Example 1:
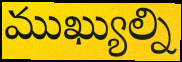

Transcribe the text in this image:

ముఖ్యుల్ని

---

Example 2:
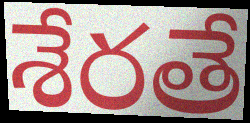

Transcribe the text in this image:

శేరతే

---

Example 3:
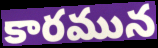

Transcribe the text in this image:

కారమున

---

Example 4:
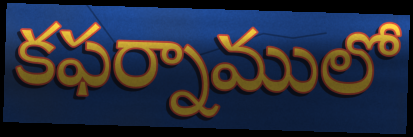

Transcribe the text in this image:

కఫర్నాములో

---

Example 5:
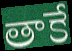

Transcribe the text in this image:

తాకే